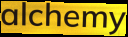
alchemy